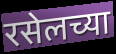
रसेलच्या